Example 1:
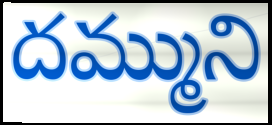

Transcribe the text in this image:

దమ్ముని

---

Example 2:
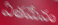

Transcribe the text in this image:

ఏతమేవం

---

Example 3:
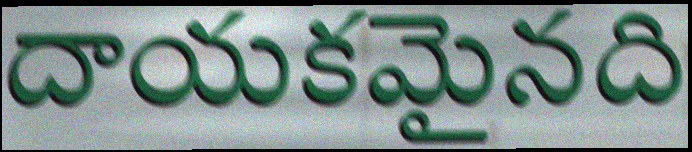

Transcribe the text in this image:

దాయకమైనది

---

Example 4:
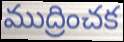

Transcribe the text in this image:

ముద్రించక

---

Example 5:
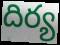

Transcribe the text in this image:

దిర్య